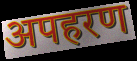
अपहरण